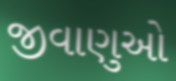
જીવાણુઓ